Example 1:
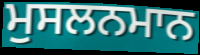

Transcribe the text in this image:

ਮੁਸਲਨਮਾਨ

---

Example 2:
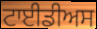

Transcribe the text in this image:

ਟਾਈਡੀਅਸ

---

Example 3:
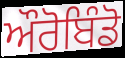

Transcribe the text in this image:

ਔਰੋਬਿੰਡੋ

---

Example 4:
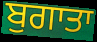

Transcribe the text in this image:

ਬੁਗਾਤਾ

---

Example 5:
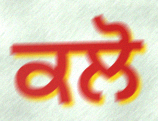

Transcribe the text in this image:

ਕਲੋ